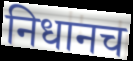
निधानच